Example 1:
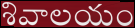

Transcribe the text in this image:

శివాలయం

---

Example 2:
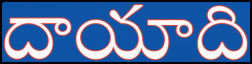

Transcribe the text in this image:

దాయాది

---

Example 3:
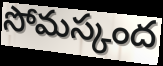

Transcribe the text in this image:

సోమస్కంద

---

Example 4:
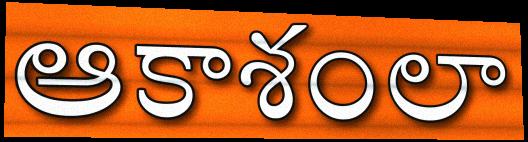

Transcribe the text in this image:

ఆకాశంలా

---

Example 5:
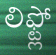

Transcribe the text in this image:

లిఫ్ట్లో